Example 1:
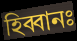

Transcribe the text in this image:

হিব্বানঃ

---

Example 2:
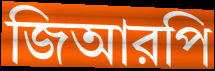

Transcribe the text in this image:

জিআরপি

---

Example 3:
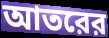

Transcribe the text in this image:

আতরের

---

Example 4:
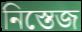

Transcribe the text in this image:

নিস্তেজ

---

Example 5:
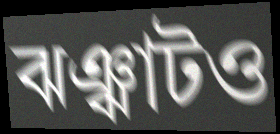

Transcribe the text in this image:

ঝঞ্ঝাটও